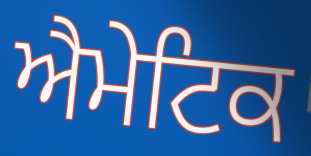
ਐਮੇਟਿਕ